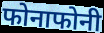
फोनाफोनी